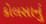
કોલસાનું